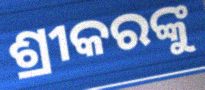
ଶ୍ରୀକରଙ୍କୁ